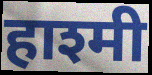
हाश्मी